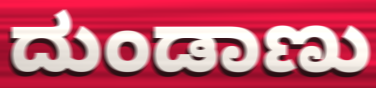
ದುಂಡಾಣು